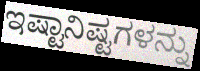
ಇಷ್ಟಾನಿಷ್ಟಗಳನ್ನು